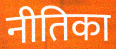
नीतिका